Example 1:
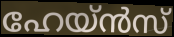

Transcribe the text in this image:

ഹേയ്ൻസ്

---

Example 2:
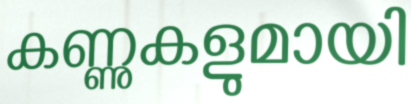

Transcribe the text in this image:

കണ്ണുകളുമായി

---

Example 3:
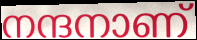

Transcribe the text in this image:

നന്ദനാണ്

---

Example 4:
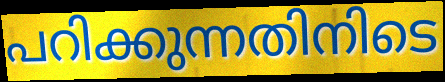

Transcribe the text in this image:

പറിക്കുന്നതിനിടെ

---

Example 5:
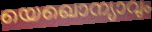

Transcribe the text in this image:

യെഖൊന്യാവും